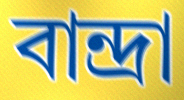
বান্দ্রা